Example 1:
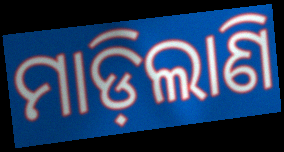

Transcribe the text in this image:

ମାଡ଼ିଲାଣି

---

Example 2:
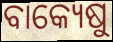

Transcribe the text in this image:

ବାକ୍ୟେଷୁ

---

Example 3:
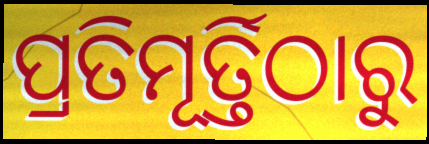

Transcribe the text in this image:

ପ୍ରତିମୂର୍ତ୍ତିଠାରୁ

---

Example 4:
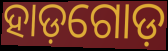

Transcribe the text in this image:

ହାଡ଼ଗୋଡ଼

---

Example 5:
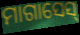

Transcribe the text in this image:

ମାଗାସେସ୍